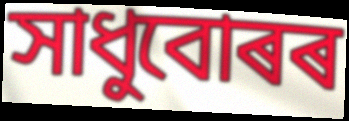
সাধুবোৰৰ